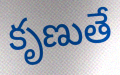
కృణుతే